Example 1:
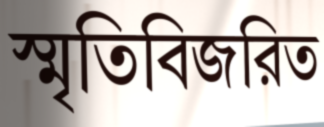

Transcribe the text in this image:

স্মৃতিবিজরিত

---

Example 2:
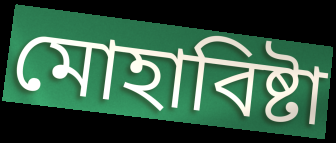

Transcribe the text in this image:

মোহাবিষ্টা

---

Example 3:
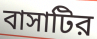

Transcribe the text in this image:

বাসাটির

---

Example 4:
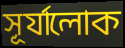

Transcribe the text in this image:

সূর্যালোক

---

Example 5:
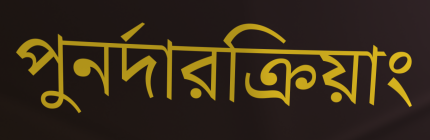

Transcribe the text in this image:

পুনর্দারক্রিয়াং